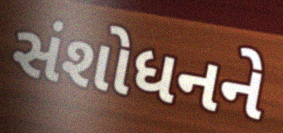
સંશોધનને